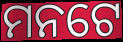
ମନଟେ